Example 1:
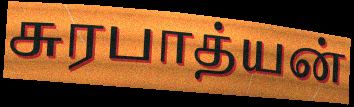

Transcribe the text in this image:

சுரபாத்யன்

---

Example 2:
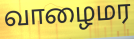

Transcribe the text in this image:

வாழைமர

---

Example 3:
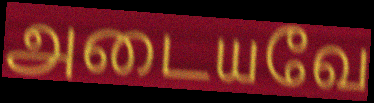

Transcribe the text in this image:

அடையவே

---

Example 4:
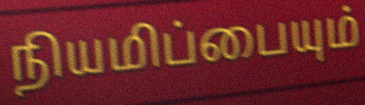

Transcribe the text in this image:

நியமிப்பையும்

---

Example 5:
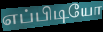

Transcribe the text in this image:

எப்பிடியோ